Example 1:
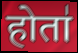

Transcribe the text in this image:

होता॑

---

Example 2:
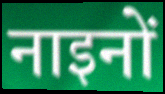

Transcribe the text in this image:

नाइनों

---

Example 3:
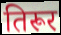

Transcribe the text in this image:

तिरूर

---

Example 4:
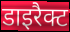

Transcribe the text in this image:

डाइरैक्ट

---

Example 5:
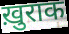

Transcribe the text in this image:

ख़ुराक